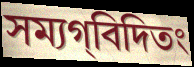
সম্যগ্‌বিদিতং